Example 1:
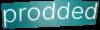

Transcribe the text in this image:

prodded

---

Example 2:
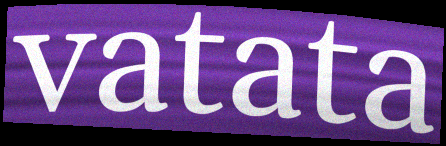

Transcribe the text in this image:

vatata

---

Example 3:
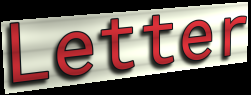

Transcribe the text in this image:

Letter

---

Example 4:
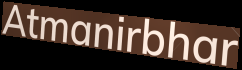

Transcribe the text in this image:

Atmanirbhar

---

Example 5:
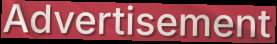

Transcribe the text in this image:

Advertisement